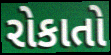
રોકાતો